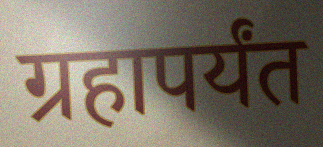
ग्रहापर्यंत